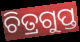
ଚିତ୍ରଗୁପ୍ତ